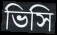
ভিসি